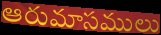
ఆరుమాసములు